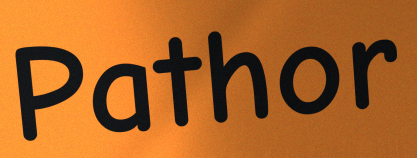
Pathor